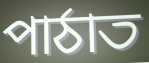
পাঠাত